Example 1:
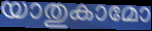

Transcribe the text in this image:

യാതുകാമോ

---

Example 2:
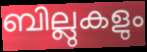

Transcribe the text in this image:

ബില്ലുകളും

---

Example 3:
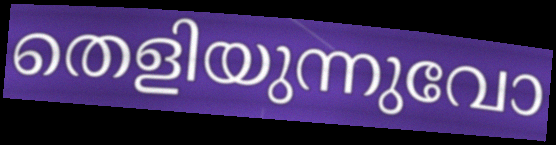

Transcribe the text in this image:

തെളിയുന്നുവോ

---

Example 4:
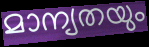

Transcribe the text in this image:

മാന്യതയും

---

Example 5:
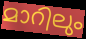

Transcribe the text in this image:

മാറിലും